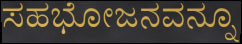
ಸಹಭೋಜನವನ್ನೂ